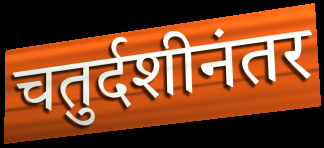
चतुर्दशीनंतर